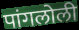
पांगलोली